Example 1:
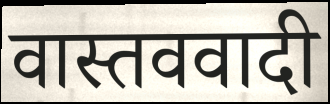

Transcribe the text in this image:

वास्तववादी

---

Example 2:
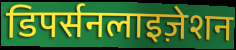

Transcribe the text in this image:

डिपर्सनलाइज़ेशन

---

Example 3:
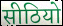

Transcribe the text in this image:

सीठियो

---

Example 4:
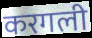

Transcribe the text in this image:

करगली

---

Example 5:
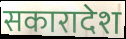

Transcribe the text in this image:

सकारादेश